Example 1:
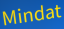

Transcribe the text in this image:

Mindat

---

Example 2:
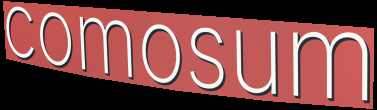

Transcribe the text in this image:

comosum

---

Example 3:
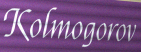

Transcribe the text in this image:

Kolmogorov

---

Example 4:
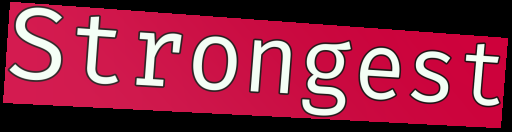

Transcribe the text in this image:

Strongest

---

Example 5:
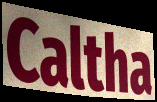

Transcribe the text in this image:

Caltha